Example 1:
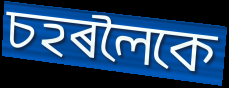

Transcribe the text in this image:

চহৰলৈকে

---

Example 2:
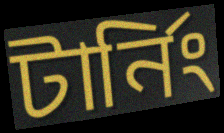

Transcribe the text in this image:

টাৰ্নিং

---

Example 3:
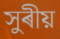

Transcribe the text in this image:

সুৰীয়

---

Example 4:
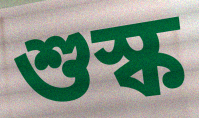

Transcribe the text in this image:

শুস্ক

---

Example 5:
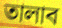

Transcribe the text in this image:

তালাব